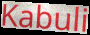
Kabuli